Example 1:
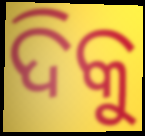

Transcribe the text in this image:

ଦିକୁ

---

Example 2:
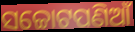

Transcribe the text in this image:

ସଚ୍ଚୋଟପଣିଆଁ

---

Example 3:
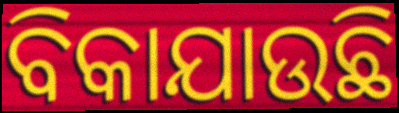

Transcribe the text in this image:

ବିକାଯାଉଛି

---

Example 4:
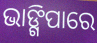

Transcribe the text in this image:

ଭାଙ୍ଗିପାରେ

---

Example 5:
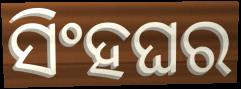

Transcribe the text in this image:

ସିଂହଘର